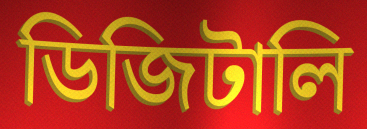
ডিজিটালি